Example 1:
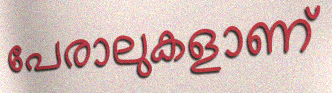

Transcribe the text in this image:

പേരാലുകളാണ്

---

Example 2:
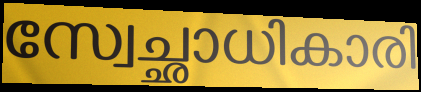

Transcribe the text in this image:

സ്വേച്ഛാധികാരി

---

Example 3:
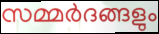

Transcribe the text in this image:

സമ്മർദങ്ങളും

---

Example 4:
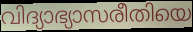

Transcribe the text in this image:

വിദ്യാഭ്യാസരീതിയെ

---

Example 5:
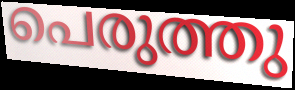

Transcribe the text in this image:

പെരുത്തു